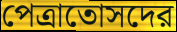
পেত্রাতোসদের